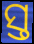
ସ୍ତ